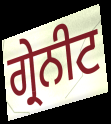
ਗ੍ਰੇਨੀਟ